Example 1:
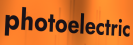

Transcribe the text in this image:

photoelectric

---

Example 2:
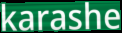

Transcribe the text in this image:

karashe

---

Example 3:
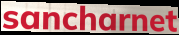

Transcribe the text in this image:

sancharnet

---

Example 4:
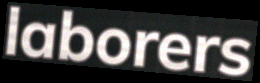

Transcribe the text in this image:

laborers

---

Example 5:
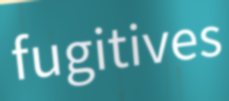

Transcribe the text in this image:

fugitives